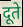
दूते